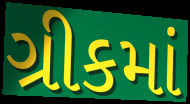
ગ્રીકમાં